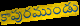
కాపురముండు